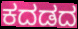
ಕದಡದ